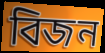
বিজন